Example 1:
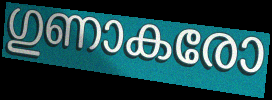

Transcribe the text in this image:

ഗുണാകരോ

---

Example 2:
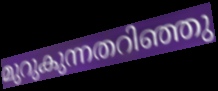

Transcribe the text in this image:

മുറുകുന്നതറിഞ്ഞു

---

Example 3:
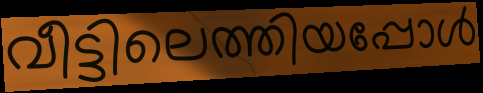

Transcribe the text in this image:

വീട്ടിലെത്തിയപ്പോൾ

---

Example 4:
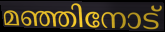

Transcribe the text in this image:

മഞ്ഞിനോട്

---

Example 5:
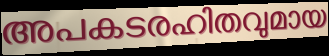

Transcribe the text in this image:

അപകടരഹിതവുമായ